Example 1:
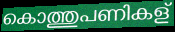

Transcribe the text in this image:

കൊത്തുപണികള്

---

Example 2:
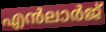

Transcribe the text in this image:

എൻലാർജ്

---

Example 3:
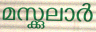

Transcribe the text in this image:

മസ്ക്കുലാർ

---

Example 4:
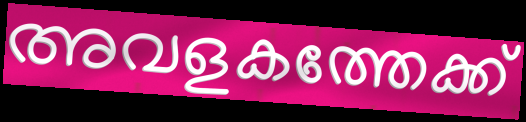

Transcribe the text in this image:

അവളകത്തേക്ക്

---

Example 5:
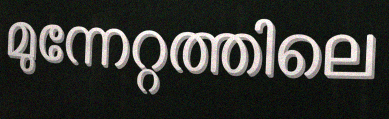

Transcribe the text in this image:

മുന്നേറ്റത്തിലെ